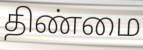
திண்மை